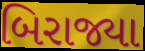
બિરાજ્યા